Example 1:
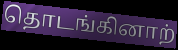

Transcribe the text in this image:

தொடங்கினாற்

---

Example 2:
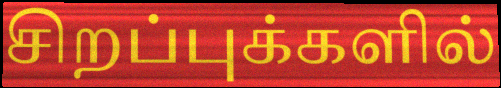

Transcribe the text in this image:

சிறப்புக்களில்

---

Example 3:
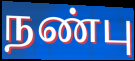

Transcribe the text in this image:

நண்பு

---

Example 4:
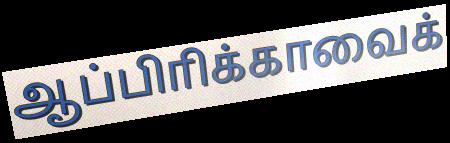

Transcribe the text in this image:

ஆப்பிரிக்காவைக்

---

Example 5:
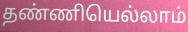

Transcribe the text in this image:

தண்ணியெல்லாம்